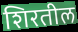
शिरतील